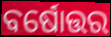
ବର୍ଷୋତ୍ତର